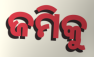
ଜମିକୁ